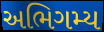
અભિગમ્ય